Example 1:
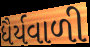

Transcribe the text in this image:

ધૈર્યવાળી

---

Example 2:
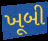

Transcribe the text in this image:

ખૂબી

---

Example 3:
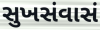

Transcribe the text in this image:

સુખસંવાસં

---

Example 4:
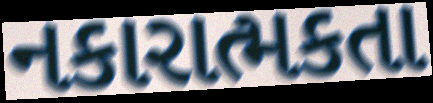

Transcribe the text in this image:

નકારાત્મકતા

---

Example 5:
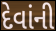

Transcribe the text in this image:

દેવાંની